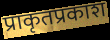
प्राकृतप्रकाश